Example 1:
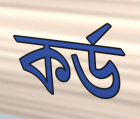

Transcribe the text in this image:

কৰ্ড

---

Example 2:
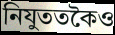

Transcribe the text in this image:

নিযুততকৈও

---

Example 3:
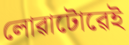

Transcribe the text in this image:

লোৱাটোৱেই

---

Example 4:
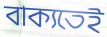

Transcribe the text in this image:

বাক্যতেই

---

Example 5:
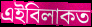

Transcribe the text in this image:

এইবিলাকত